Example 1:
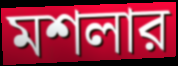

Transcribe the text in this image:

মশলার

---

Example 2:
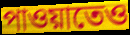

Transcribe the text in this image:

পাওয়াতেও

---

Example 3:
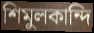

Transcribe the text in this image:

শিমুলকান্দি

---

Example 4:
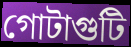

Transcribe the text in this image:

গোটাগুটি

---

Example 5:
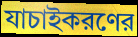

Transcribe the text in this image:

যাচাইকরণের